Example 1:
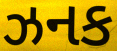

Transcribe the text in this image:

ઝનક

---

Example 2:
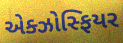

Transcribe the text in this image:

એક્ઝોસ્ફિયર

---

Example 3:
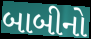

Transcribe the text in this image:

બાબીનો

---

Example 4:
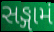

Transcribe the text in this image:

સઙ્ગામં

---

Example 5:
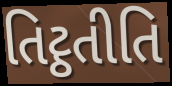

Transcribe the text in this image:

તિટ્ઠતીતિ